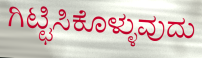
ಗಿಟ್ಟಿಸಿಕೊಳ್ಳುವುದು